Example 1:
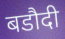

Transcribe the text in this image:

बडौदी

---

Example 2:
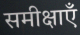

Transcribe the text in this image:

समीक्षाएँ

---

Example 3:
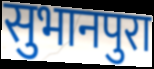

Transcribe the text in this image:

सुभानपुरा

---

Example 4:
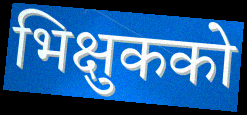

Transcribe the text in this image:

भिक्षुकको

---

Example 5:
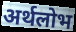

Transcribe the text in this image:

अर्थलोभ